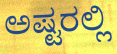
ಅಷ್ಟರಲ್ಲಿ